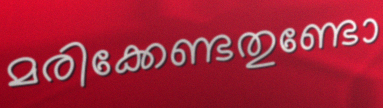
മരിക്കേണ്ടതുണ്ടോ